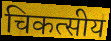
चिकत्सीय